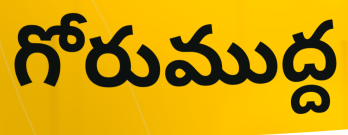
గోరుముద్ద